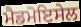
ਮੈਡਮੋਇਸੇਲ